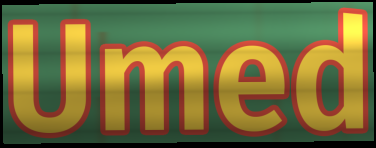
Umed